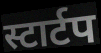
स्टार्टप